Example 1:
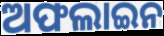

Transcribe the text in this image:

ଅଫଲାଇନ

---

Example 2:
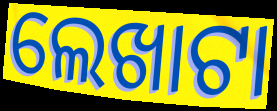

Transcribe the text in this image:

ଲେଖାଟା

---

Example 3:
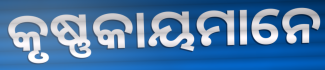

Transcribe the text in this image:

କୃଷ୍ଣକାୟମାନେ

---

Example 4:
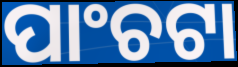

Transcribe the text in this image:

ପାଂଚଟା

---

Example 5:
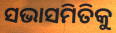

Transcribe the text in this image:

ସଭାସମିତିକୁ